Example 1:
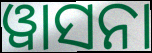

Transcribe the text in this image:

ୱାସନା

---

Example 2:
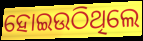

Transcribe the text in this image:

ହୋଇଉଠିଥିଲେ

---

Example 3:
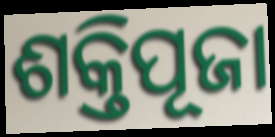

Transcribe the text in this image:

ଶକ୍ତିପୂଜା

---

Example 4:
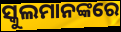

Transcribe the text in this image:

ସ୍କୁଲମାନଙ୍କରେ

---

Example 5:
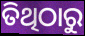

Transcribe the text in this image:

ତିଥିଠାରୁ